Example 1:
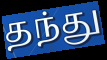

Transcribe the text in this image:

தந்து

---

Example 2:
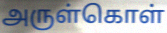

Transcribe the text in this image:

அருள்கொள்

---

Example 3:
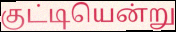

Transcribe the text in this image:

குட்டியென்று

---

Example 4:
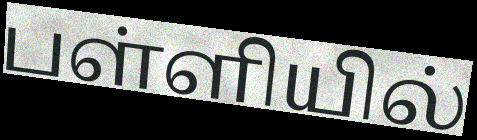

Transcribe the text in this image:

பள்ளியில்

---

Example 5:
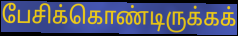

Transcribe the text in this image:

பேசிக்கொண்டிருக்கக்